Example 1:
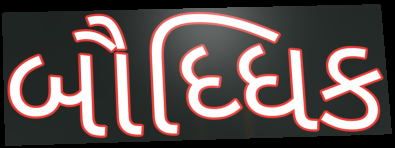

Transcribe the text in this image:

બૌધ્ધિક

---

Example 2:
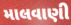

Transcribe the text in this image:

માલવાણી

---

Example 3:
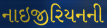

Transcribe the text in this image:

નાઇજીરિયનની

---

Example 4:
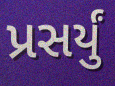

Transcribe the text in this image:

પ્રસર્યું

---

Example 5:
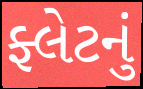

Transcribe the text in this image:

ફ્લેટનું